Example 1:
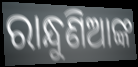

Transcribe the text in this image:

ରାନ୍ଧୁଣିଆଙ୍କ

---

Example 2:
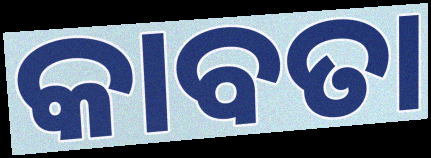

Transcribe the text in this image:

କାବତା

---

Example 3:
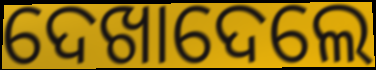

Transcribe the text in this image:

ଦେଖାଦେଲେ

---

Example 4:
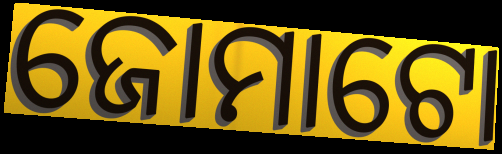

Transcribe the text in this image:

ଜୋମାଟୋ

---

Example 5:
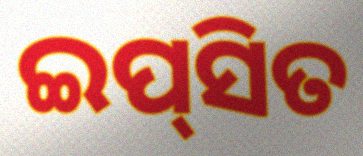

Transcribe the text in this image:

ଇପ୍‌ସିତ